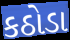
કઠોડા